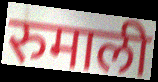
रुमाली